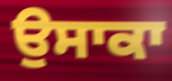
ਉਸਾਕਾ